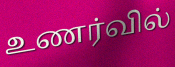
உணர்வில்